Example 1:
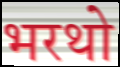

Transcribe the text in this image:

भरथो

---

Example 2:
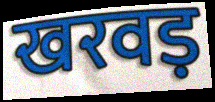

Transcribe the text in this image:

खरवड़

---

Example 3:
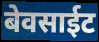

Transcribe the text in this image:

बेवसाईट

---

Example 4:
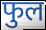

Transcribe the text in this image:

फुल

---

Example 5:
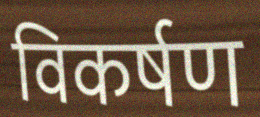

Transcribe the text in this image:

विकर्षण